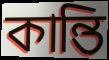
কান্তি